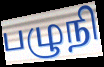
பழுநி